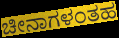
ಚೀನಾಗಳಂತಹ